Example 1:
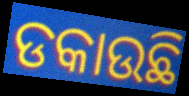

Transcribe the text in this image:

ଡକାଉଛି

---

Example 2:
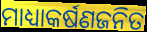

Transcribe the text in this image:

ମାଧ୍ୟାକର୍ଷଣଜନିତ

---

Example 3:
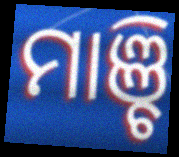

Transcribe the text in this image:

ମାଞ୍ଚି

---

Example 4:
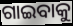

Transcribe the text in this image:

ଗାଇବାକୁ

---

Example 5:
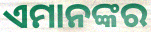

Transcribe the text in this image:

ଏମାନଙ୍କର